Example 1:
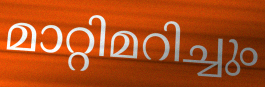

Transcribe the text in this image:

മാറ്റിമറിച്ചും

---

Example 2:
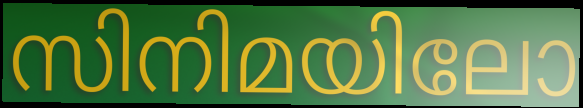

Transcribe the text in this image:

സിനിമയിലോ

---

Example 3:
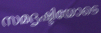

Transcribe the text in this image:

സമദൃഷ്ടിയോടെ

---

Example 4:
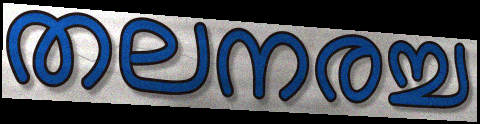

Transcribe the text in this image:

തലനരച്ച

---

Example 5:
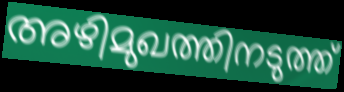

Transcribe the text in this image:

അഴിമുഖത്തിനടുത്ത്